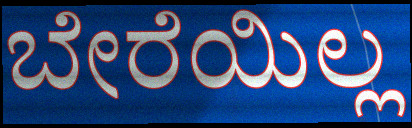
ಬೇರೆಯಿಲ್ಲ